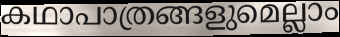
കഥാപാത്രങ്ങളുമെല്ലാം